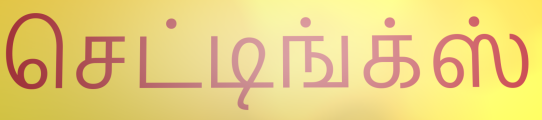
செட்டிங்க்ஸ்